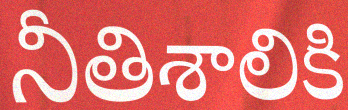
నీతిశాలికి